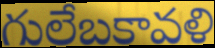
గులేబకావళి